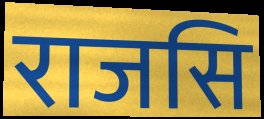
राजसि